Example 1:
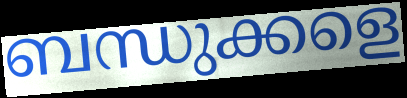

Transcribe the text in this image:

ബന്ധുക്കളെ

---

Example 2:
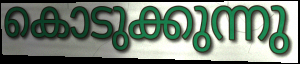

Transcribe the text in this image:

കൊടുക്കുന്നു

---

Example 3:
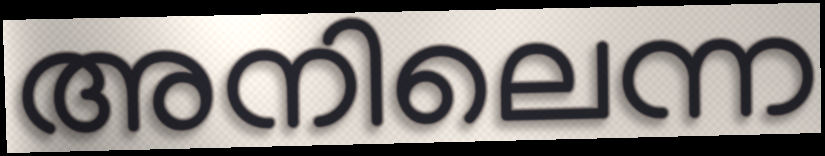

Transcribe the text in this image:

അനിലെന്ന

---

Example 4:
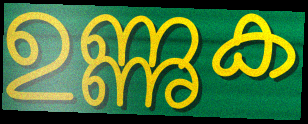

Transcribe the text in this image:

ഉണ്ണുക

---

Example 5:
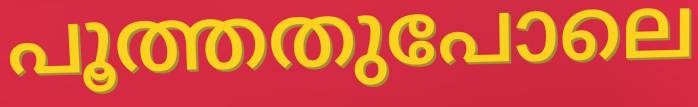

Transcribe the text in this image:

പൂത്തതുപോലെ